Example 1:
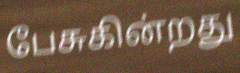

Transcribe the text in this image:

பேசுகின்றது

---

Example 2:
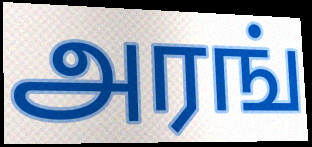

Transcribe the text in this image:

அரங்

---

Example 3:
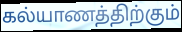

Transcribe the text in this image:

கல்யாணத்திற்கும்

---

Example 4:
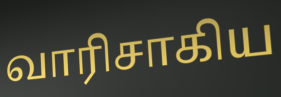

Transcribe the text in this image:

வாரிசாகிய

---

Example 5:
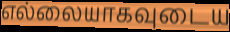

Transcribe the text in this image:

எல்லையாகவுடைய